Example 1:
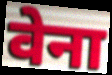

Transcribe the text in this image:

वेना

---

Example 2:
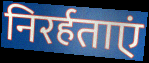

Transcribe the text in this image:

निरर्हताएं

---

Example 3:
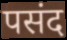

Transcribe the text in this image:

पसंद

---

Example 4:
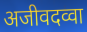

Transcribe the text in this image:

अजीवदव्वा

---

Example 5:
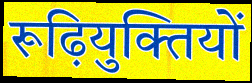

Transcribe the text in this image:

रूढ़ियुक्तियों